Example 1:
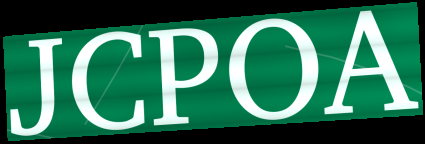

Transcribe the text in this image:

JCPOA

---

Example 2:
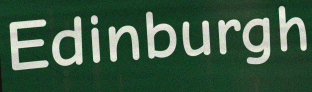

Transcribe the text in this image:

Edinburgh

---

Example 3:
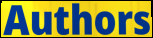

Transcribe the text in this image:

Authors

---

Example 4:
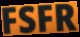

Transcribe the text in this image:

FSFR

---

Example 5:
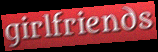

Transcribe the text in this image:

girlfriends